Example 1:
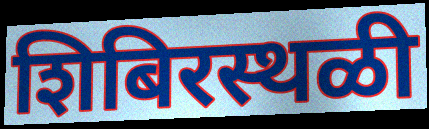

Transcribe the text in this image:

शिबिरस्थळी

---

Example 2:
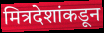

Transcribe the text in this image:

मित्रदेशांकडून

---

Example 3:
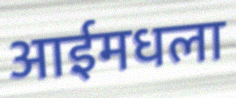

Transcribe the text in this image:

आईमधला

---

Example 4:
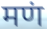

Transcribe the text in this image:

मणं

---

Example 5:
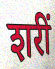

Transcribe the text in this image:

शरीं